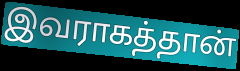
இவராகத்தான்